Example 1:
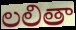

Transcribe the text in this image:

లలితా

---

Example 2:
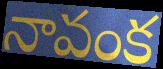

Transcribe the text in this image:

నావంక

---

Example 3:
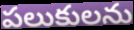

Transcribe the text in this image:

పలుకులను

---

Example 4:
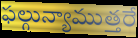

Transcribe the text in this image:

ఫల్గున్యాముత్తరే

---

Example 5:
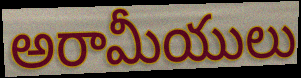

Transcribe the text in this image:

అరామీయులు